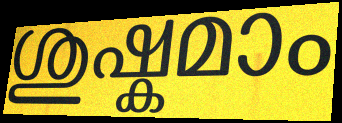
ശുഷ്കമാം